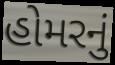
હોમરનું